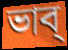
ভাব্